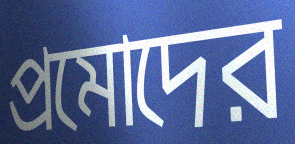
প্রমোদের